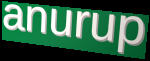
anurup